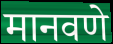
मानवणे